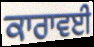
ਕਾਰਾਵਈ